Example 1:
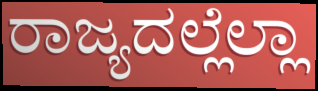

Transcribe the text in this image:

ರಾಜ್ಯದಲ್ಲೆಲ್ಲಾ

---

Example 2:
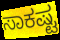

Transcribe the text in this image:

ಸಾಕಷ್ಟ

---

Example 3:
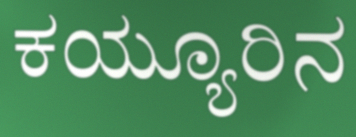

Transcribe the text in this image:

ಕಯ್ಯೂರಿನ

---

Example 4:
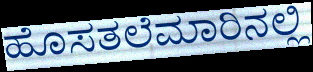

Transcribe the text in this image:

ಹೊಸತಲೆಮಾರಿನಲ್ಲಿ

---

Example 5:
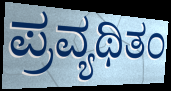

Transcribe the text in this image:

ಪ್ರವ್ಯಥಿತಂ